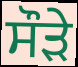
ਸੌੜੇ